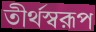
তীর্থস্বরূপ